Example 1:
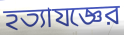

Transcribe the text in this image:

হত্যাযজ্ঞের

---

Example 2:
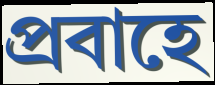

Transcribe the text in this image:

প্রবাহে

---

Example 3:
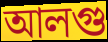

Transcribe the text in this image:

আলগু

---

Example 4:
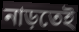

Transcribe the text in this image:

নাড়তেই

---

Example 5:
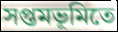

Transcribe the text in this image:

সপ্তমভূমিতে